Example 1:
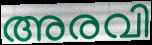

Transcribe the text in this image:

അരവി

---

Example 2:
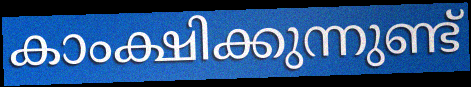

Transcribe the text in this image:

കാംക്ഷിക്കുന്നുണ്ട്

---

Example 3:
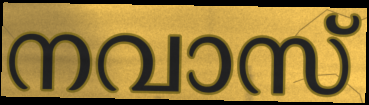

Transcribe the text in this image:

നവാസ്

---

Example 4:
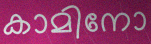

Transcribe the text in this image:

കാമിനോ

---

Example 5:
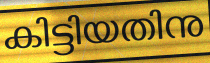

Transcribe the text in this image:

കിട്ടിയതിനു